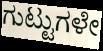
ಗುಟ್ಟುಗಳೇ